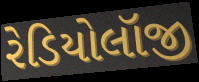
રેડિયોલૉજી